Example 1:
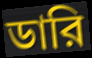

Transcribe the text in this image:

ডারি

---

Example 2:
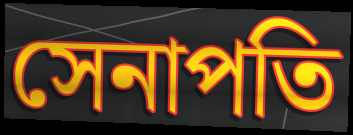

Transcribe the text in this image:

সেনাপতি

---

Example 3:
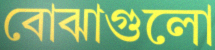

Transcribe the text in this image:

বোঝাগুলো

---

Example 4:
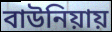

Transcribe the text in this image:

বাউনিয়ায়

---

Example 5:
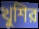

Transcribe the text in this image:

খুশির